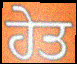
ਹੇਤ